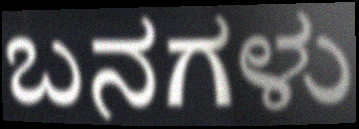
ಬನಗಳು